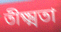
তীক্ষ্মতা